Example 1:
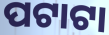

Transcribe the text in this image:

ପଟାଟା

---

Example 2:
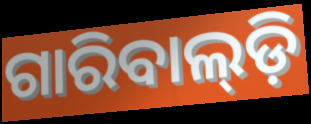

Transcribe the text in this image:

ଗାରିବାଲ୍‌ଡ଼ି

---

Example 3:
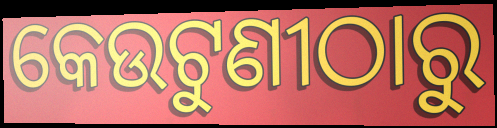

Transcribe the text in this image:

କେଉଟୁଣୀଠାରୁ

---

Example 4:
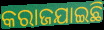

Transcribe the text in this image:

କରାଜଯାଇଛି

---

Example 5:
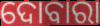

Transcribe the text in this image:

ଦୋବାରା